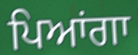
ਪਿਆਂਗਾ